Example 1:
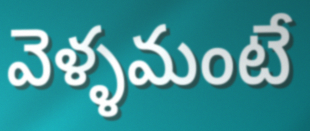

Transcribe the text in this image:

వెళ్ళమంటే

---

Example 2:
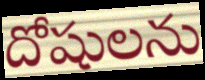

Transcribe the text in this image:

దోషులను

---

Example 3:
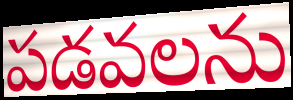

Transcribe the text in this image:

పడవలను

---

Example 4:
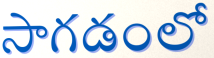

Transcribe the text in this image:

సాగడంలో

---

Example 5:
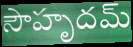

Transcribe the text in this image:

సౌహృదమ్